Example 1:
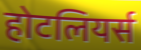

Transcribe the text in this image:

होटलियर्स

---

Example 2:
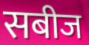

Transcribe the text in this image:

सबीज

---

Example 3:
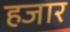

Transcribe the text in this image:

हजार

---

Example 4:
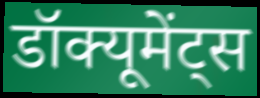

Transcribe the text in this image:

डॉक्यूमेंट्स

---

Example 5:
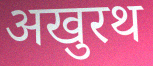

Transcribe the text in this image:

अखुरथ